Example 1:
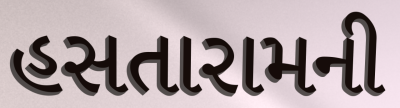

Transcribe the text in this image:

હસતારામની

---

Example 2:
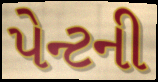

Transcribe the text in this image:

પેન્ટની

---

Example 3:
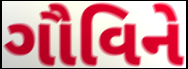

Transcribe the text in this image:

ગૌવિને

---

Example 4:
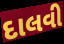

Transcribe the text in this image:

દાલવી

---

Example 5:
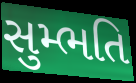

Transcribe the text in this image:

સુમ્ભતિ